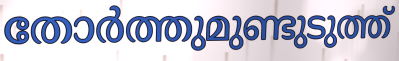
തോർത്തുമുണ്ടുടുത്ത്